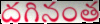
దగినంత